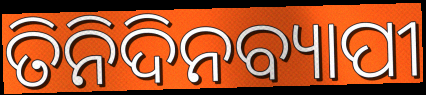
ତିନିଦିନବ୍ୟାପୀ